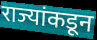
राज्यांकडून